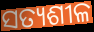
ସତ୍ୟଶୀଳ